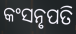
କଂସନୃପତି